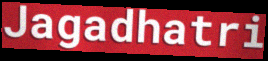
Jagadhatri